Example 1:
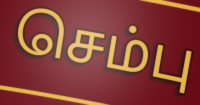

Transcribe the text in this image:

செம்பு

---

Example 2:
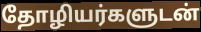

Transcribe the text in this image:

தோழியர்களுடன்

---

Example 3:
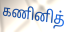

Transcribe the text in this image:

கணினித்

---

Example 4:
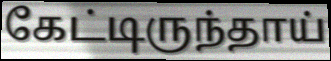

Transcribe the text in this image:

கேட்டிருந்தாய்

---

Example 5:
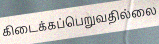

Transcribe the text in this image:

கிடைக்கப்பெறுவதில்லை